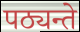
पठ्यन्ते